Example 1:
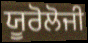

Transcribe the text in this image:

ਯੂਰੋਲੋਜੀ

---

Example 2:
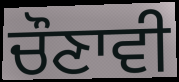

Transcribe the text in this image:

ਚੌਣਾਵੀ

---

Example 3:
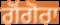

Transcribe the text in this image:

ਗੋਂਗੋਰਾ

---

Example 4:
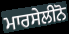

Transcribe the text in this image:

ਮਾਰਸੇਲੀਨੋ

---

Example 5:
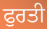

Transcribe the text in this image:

ਫੁਰਤੀ